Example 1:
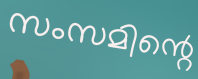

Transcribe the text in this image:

സംസമിന്റെ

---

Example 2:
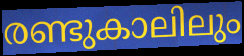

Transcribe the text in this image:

രണ്ടുകാലിലും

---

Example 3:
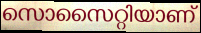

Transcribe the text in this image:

സൊസൈറ്റിയാണ്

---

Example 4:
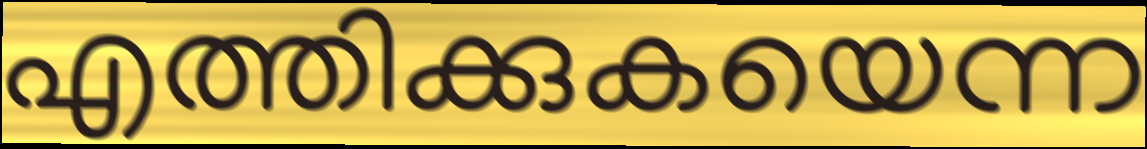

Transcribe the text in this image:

എത്തിക്കുകയെന്ന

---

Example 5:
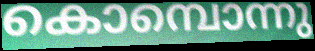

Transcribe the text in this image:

കൊമ്പൊന്നു